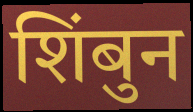
शिंबुन